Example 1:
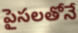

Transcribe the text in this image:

పైసలతోనే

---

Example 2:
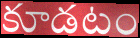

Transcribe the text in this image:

కూడటం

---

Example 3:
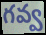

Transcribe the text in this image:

గవ్వ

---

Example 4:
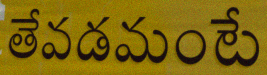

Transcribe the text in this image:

తేవడమంటే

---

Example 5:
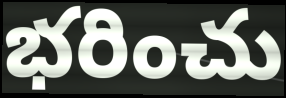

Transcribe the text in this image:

భరించు